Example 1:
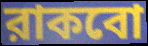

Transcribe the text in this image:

রাকবো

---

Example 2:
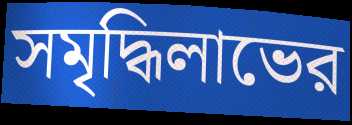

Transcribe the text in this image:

সমৃদ্ধিলাভের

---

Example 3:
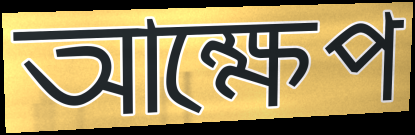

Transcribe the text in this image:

আক্ষেপ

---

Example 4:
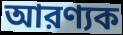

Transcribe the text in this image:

আরণ্যক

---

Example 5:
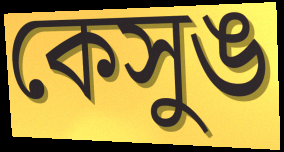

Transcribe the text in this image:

কেসুঙ